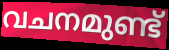
വചനമുണ്ട്